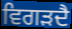
ਵਿਗੜਦੈ